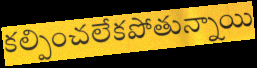
కల్పించలేకపోతున్నాయి